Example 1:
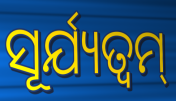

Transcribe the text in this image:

ସୂର୍ଯ୍ୟତ୍ୱମ୍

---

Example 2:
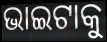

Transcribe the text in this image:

ଭାଇଟାକୁ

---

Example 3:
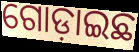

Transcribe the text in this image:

ଗୋଡ଼ାଇଛ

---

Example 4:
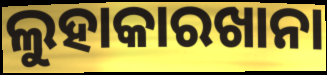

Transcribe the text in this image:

ଲୁହାକାରଖାନା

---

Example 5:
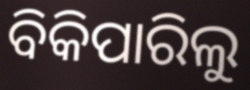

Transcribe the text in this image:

ବିକିପାରିଲୁ